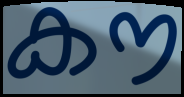
കൗ